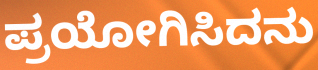
ಪ್ರಯೋಗಿಸಿದನು